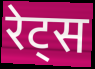
रेट्स